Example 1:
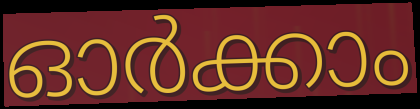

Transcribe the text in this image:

ഓർക്കാം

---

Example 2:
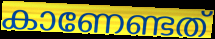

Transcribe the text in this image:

കാണേണ്ടത്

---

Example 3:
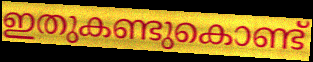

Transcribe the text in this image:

ഇതുകണ്ടുകൊണ്ട്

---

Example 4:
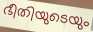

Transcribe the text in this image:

ഭീതിയുടെയും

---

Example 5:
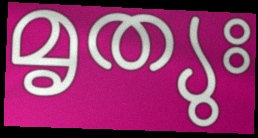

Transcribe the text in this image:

മൃത്യുഃ